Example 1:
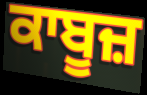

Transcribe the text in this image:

ਕਾਬੂਜ਼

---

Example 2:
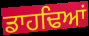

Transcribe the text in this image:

ਡਾਹਢਿਆਂ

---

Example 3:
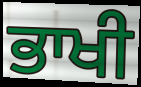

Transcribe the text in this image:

ਭਾਖੀ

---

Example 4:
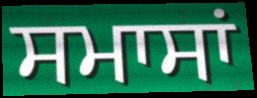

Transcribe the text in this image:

ਸਮਾਸਾਂ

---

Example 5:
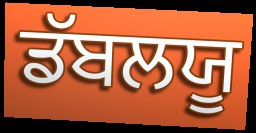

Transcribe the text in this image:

ਡੱਬਲਯੂ